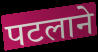
पटलाने